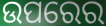
ଉପରେର